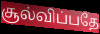
சூல்விப்பதே